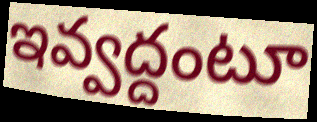
ఇవ్వద్దంటూ